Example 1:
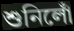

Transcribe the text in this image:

শুনিলোঁ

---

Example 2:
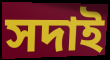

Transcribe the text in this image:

সদাই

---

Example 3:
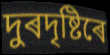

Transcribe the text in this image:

দুৰদৃষ্টিৰে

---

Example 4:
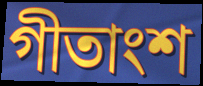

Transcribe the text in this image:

গীতাংশ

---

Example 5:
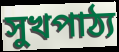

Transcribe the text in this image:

সুখপাঠ্য